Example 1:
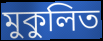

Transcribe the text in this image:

মুকুলিত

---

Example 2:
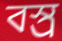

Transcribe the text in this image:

বস্ত্র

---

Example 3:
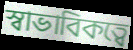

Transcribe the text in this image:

স্বাভাবিকত্বে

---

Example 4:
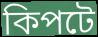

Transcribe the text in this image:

কিপটে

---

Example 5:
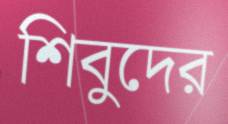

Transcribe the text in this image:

শিবুদের